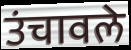
उंचावले